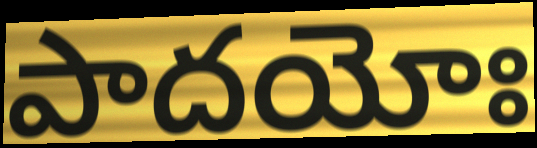
పాదయోః